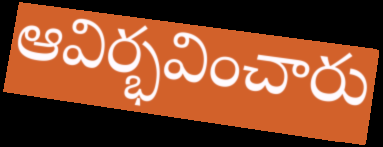
ఆవిర్భవించారు